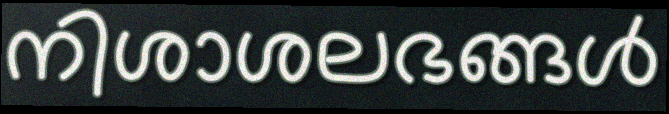
നിശാശലഭങ്ങൾ